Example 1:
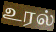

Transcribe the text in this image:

உரல்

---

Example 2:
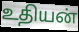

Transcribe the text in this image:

உதியன்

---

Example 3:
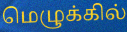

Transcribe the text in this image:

மெழுக்கில்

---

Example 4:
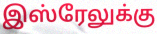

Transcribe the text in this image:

இஸ்ரேலுக்கு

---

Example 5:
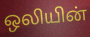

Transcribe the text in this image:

ஒலியின்